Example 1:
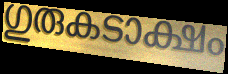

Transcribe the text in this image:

ഗുരുകടാക്ഷം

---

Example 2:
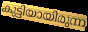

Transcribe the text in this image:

കുട്ടിയായിരുന്ന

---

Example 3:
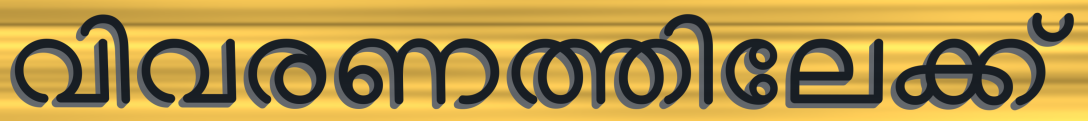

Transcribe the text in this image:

വിവരണത്തിലേക്ക്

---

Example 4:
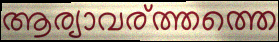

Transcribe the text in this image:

ആര്യാവര്ത്തത്തെ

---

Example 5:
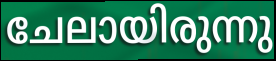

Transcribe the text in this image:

ചേലായിരുന്നു